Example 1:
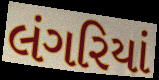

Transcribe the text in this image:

લંગરિયાં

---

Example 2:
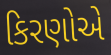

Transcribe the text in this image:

કિરણોએ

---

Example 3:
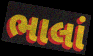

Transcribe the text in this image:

ભાલાં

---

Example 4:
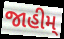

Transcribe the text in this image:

જાહીમ્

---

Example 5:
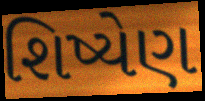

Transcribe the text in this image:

શિષ્યેણ